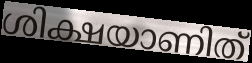
ശിക്ഷയാണിത്